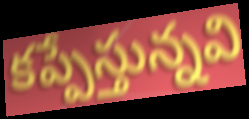
కప్పేస్తున్నవి